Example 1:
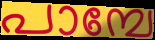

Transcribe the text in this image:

പാമ്പേ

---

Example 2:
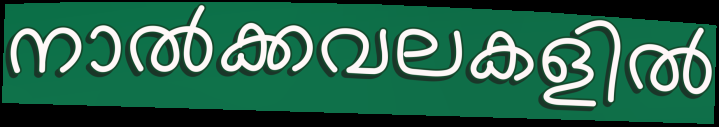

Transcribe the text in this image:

നാൽക്കവലകളിൽ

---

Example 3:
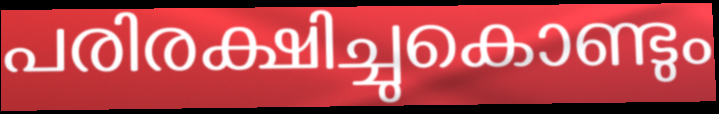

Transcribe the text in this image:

പരിരക്ഷിച്ചുകൊണ്ടും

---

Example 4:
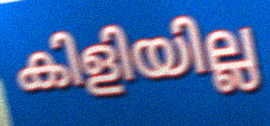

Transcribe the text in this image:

കിളിയില്ല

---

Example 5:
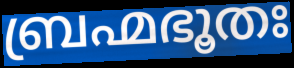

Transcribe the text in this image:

ബ്രഹ്മഭൂതഃ